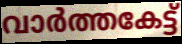
വാർത്തകേട്ട്